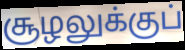
சூழலுக்குப்